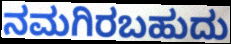
ನಮಗಿರಬಹುದು